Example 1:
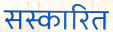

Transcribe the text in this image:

सस्कारित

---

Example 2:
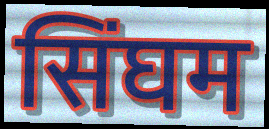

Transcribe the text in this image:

सिंघम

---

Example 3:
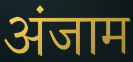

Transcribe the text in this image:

अंजाम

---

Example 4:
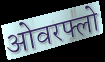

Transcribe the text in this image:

ओवरफ्लो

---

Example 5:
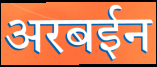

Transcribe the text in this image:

अरबईन